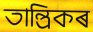
তান্ত্ৰিকৰ